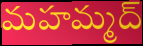
మహమ్మద్